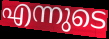
എന്നുടെ